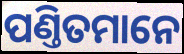
ପଣ୍ତିତମାନେ